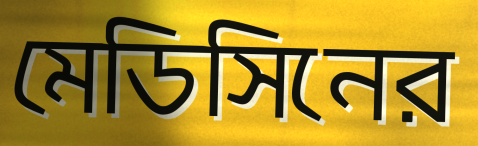
মেডিসিনের